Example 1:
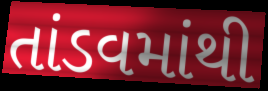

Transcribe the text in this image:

તાંડવમાંથી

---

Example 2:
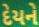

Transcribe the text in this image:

દેયને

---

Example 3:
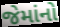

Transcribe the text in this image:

જેમાંનો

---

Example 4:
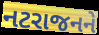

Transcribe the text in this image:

નટરાજનને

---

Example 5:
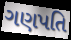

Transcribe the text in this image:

ગણપતિ